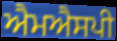
ਐਮਐਸਪੀ